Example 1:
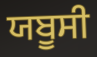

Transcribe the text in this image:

ਯਬੂਸੀ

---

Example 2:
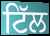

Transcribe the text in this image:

ਟਿੱਲ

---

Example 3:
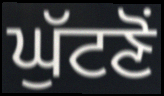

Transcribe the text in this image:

ਘੁੱਟਣੋਂ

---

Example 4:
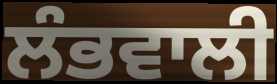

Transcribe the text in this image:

ਲੰਭਵਾਲੀ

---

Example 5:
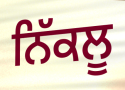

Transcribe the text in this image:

ਨਿੱਕਲੂ